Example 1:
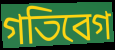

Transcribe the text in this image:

গতিবেগ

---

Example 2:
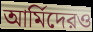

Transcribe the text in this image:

আর্মিদেরও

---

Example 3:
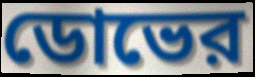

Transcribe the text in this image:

ডোভের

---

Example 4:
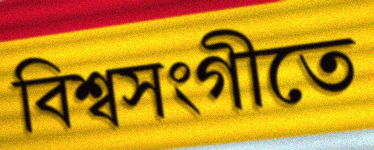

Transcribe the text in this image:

বিশ্বসংগীতে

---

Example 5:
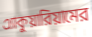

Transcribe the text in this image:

এ্যাকুয়ারিয়ামের